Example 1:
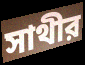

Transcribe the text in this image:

সাথীর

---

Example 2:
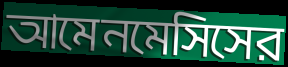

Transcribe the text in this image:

আমেনমেসিসের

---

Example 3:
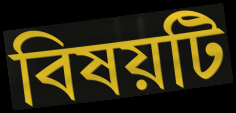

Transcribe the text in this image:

বিষয়টি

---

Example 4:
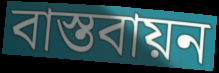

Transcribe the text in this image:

বাস্তবায়ন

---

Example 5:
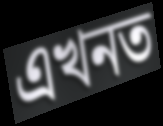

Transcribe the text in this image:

এখনত